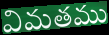
విమతము